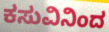
ಕಸುವಿನಿಂದ